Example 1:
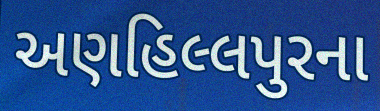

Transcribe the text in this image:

અણહિલ્લપુરના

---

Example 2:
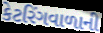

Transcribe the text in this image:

કેટરિંગવાળાની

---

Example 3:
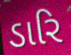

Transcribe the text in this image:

ડારિ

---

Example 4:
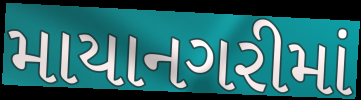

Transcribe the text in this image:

માયાનગરીમાં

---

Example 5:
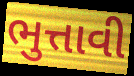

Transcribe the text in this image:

ભુત્તાવી